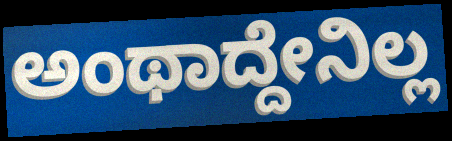
ಅಂಥಾದ್ದೇನಿಲ್ಲ